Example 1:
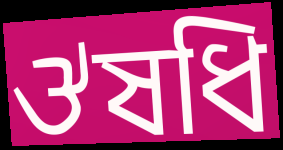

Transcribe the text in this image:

ঔষধি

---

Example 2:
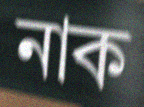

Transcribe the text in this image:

নাক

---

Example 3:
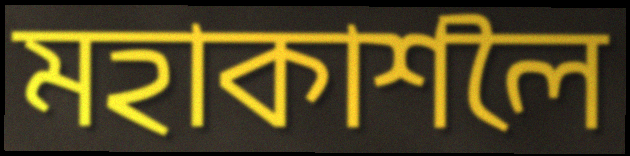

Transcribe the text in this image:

মহাকাশলৈ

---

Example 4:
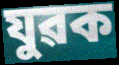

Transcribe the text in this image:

যুৱক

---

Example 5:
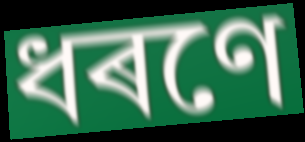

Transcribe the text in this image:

ধৰণে